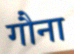
गौना